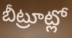
బీట్రూట్లో